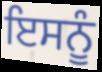
ਇਸਨੂੰ